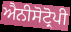
ਐਨੀਸੋਟ੍ਰੋਪੀ